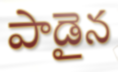
పాడైన